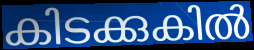
കിടക്കുകിൽ